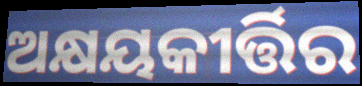
ଅକ୍ଷୟକୀର୍ତ୍ତିର